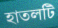
হাতলটি